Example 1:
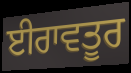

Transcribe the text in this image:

ਈਰਾਵਤੂਰ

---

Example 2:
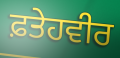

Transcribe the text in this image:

ਫ਼ਤੇਹਵੀਰ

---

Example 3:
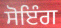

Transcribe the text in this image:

ਸੋਇੰਗ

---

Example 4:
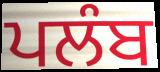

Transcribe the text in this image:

ਪਲੰਬ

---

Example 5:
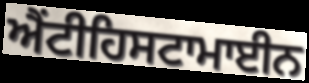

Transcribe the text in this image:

ਐਂਟੀਹਿਸਟਾਮਾਈਨ